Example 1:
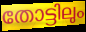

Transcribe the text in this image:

തോട്ടിലും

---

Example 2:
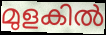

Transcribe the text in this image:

മുളകിൽ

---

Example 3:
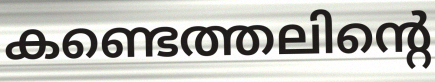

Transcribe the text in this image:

കണ്ടെത്തലിന്റെ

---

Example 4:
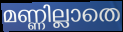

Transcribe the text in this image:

മണ്ണില്ലാതെ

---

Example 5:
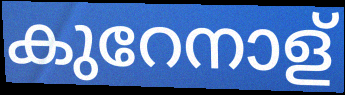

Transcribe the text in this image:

കുറേനാള്